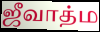
ஜீவாத்ம